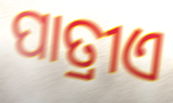
ପାତ୍ରୀଏ